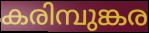
കരിമ്പുങ്കര